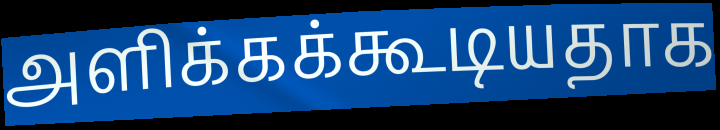
அளிக்கக்கூடியதாக